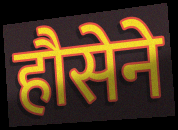
हौसेने